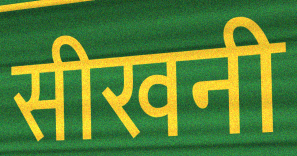
सीखनी